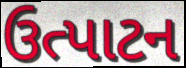
ઉત્પાટન